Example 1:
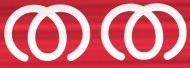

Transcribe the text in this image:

തത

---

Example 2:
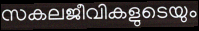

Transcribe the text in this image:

സകലജീവികളുടെയും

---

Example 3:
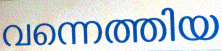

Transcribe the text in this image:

വന്നെത്തിയ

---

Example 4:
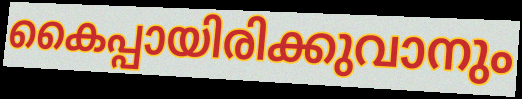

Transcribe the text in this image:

കൈപ്പായിരിക്കുവാനും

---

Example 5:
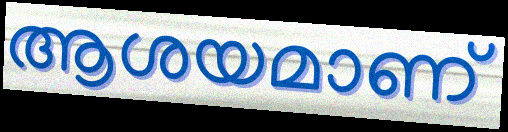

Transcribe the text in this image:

ആശയമാണ്